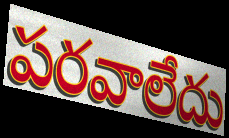
పరవాలేదు